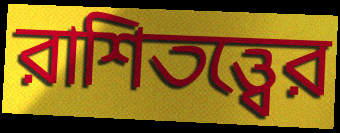
রাশিতত্ত্বের